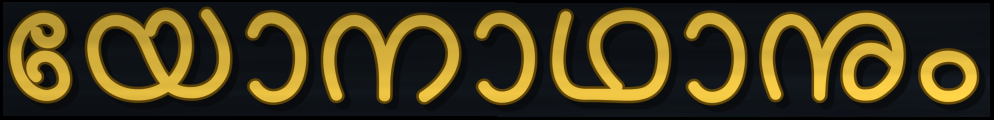
യോനാഥാനും